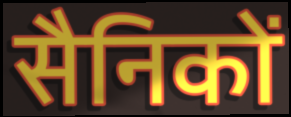
सैनिकों